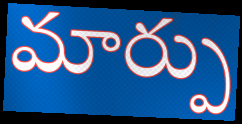
మార్పు